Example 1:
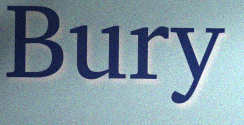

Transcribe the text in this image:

Bury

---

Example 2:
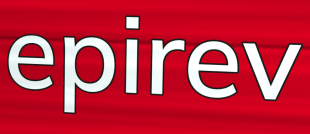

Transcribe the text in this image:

epirev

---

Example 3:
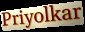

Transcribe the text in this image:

Priyolkar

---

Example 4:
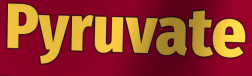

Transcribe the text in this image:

Pyruvate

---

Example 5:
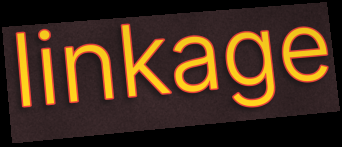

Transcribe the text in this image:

linkage